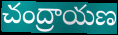
చంద్రాయణ